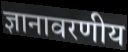
ज्ञानावरणीय